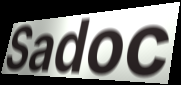
Sadoc